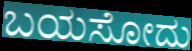
ಬಯಸೋದು